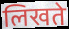
लिखते